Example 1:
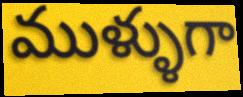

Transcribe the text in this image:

ముళ్ళుగా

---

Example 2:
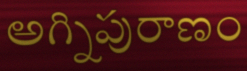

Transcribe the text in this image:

అగ్నిపురాణం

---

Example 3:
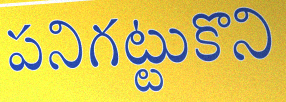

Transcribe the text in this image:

పనిగట్టుకొని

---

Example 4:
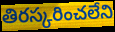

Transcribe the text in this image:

తిరస్కరించలేని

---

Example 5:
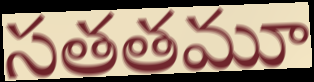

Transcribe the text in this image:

సతతమూ